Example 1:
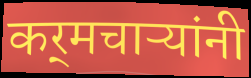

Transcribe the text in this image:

कर्मचाऱ्यांनी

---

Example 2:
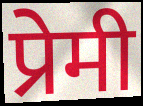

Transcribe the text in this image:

प्रेमी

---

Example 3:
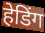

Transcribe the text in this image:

हेडिंग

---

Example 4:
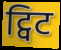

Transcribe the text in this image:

ट्विट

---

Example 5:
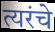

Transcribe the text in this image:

त्यरंचे